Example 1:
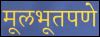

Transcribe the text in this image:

मूलभूतपणे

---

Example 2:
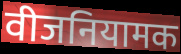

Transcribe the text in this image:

वीजनियामक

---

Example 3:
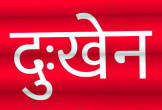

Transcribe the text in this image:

दुःखेन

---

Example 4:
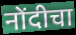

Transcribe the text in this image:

नोंदीचा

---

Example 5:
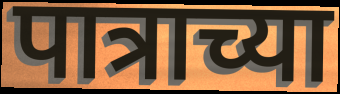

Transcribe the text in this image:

पात्राच्या